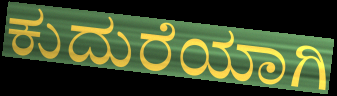
ಕುದುರೆಯಾಗಿ